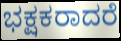
ಭಕ್ಷಕರಾದರೆ